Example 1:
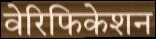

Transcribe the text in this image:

वेरिफिकेशन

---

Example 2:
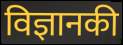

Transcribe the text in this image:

विज्ञानकी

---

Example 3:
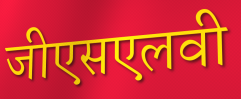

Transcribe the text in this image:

जीएसएलवी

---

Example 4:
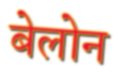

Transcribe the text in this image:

बेलोन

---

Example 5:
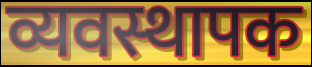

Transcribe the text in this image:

व्यवस्थापक